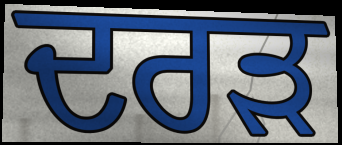
ਦਰੜ